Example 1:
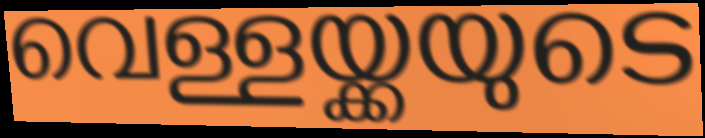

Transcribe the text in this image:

വെള്ളയ്ക്കയുടെ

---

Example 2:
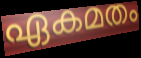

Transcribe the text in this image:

ഏകമതം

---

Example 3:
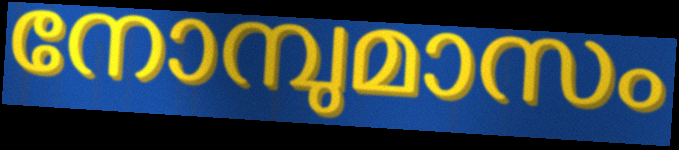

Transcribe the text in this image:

നോമ്പുമാസം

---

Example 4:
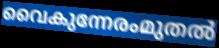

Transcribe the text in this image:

വൈകുന്നേരംമുതൽ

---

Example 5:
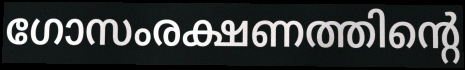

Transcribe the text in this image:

ഗോസംരക്ഷണത്തിന്റെ